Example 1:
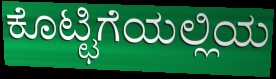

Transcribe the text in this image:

ಕೊಟ್ಟಿಗೆಯಲ್ಲಿಯ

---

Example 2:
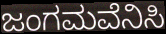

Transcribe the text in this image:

ಜಂಗಮವೆನಿಸಿ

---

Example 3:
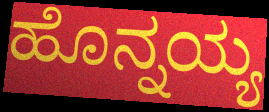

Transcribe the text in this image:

ಹೊನ್ನಯ್ಯ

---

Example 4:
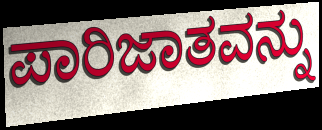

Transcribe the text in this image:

ಪಾರಿಜಾತವನ್ನು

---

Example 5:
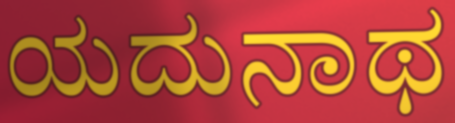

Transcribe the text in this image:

ಯದುನಾಥ